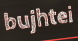
bujhtei